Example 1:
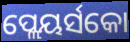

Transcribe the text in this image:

ପ୍ଲେୟର୍ସକୋ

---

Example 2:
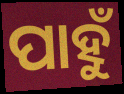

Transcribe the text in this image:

ପାହୁଁ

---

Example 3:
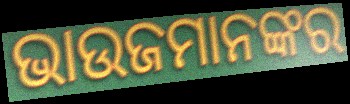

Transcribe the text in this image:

ଭାଉଜମାନଙ୍କର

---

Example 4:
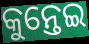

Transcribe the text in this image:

କୁନ୍ତେଇ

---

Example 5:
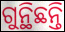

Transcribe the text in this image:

ଗୁନ୍ଥିଛନ୍ତି